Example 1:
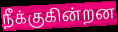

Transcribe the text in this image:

நீக்குகின்றன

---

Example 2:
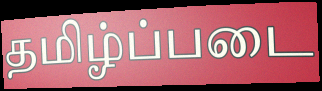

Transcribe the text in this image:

தமிழ்ப்படை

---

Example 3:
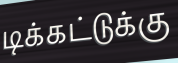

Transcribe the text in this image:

டிக்கட்டுக்கு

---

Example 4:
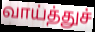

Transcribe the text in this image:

வாய்த்துச்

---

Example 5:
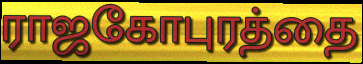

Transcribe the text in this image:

ராஜகோபுரத்தை